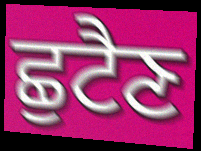
ਛੁਟੈਣ